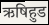
ऋषिहुड